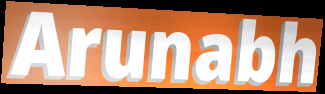
Arunabh